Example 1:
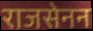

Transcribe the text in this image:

राजसेनन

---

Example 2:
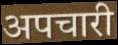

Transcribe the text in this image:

अपचारी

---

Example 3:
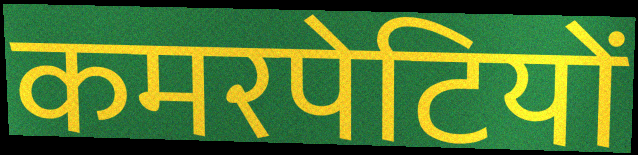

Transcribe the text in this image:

कमरपेटियों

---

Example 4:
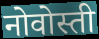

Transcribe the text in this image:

नोवोस्ती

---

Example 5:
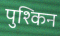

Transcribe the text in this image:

पुश्किन